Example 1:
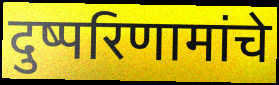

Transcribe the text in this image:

दुष्परिणामांचे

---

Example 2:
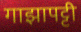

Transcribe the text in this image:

गाझापट्टी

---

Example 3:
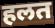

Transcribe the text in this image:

हलत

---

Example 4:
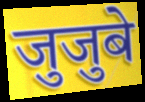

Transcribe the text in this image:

जुजुबे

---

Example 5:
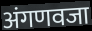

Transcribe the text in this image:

अंगणवजा